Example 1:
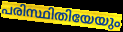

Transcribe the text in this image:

പരിസ്ഥിതിയേയും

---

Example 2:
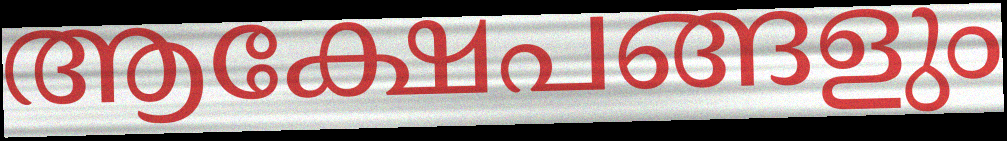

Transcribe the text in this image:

ആക്ഷേപങ്ങളും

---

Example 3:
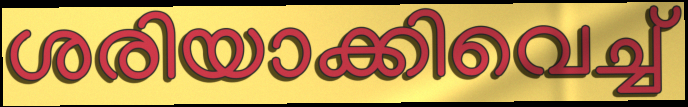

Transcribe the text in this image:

ശരിയാക്കിവെച്ച്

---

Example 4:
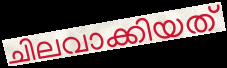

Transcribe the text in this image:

ചിലവാക്കിയത്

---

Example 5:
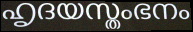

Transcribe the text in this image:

ഹൃദയസ്തംഭനം